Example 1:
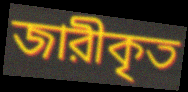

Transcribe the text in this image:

জারীকৃত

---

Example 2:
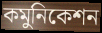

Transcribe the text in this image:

কমুনিকেশন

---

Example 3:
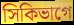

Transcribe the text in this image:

সিকিভাগে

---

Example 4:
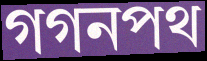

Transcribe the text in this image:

গগনপথ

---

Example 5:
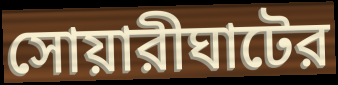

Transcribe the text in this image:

সোয়ারীঘাটের